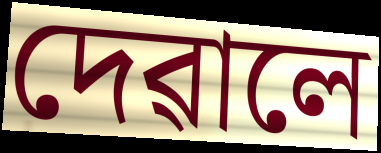
দেৱালে